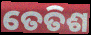
ତେତିଶ